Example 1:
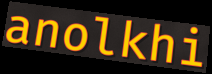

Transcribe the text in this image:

anolkhi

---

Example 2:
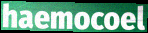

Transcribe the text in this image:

haemocoel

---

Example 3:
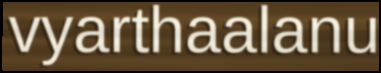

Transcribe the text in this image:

vyarthaalanu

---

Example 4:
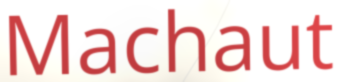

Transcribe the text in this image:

Machaut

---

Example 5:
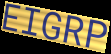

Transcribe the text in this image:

EIGRP